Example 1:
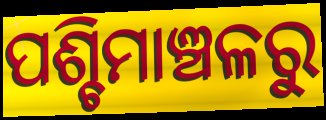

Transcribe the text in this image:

ପଶ୍ଚିମାଞ୍ଚଳରୁ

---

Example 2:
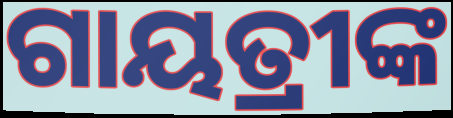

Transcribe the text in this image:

ଗାୟତ୍ରୀଙ୍କ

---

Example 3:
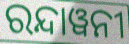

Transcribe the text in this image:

ରନ୍ଦାୱନୀ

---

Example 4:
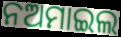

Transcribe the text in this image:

ନଅମାଇଲ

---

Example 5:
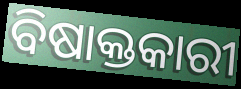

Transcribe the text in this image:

ବିଷାକ୍ତକାରୀ